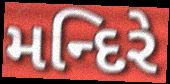
મન્દિરે